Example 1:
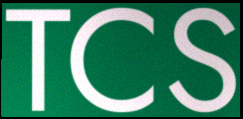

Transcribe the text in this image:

TCS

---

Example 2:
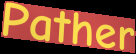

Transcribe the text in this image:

Pather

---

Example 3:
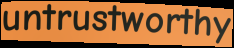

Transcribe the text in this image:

untrustworthy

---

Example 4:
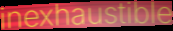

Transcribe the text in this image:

inexhaustible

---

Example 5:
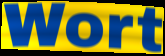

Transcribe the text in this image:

Wort